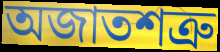
অজাতশত্রু